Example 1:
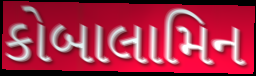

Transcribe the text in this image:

કોબાલામિન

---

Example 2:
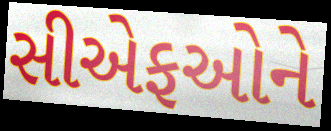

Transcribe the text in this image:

સીએફઓને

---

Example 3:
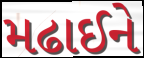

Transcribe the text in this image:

મઢાઈને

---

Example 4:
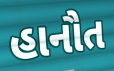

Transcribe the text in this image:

હાનૌત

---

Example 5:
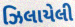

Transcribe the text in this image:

ઝિલાયેલી